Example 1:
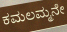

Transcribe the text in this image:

ಕಮಲಮ್ಮನೇ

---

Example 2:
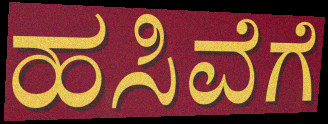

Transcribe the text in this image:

ಹಸಿವೆಗೆ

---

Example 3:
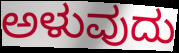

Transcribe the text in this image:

ಅಳುವುದು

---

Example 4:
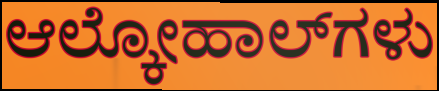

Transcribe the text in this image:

ಆಲ್ಕೋಹಾಲ್‌ಗಳು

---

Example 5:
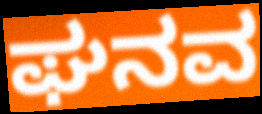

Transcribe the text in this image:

ಘನವ